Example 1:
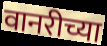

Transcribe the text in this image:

वानरीच्या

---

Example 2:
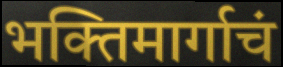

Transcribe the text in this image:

भक्तिमार्गाचं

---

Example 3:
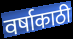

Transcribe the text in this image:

वर्षाकाठी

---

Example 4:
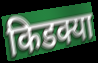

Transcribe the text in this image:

किडक्या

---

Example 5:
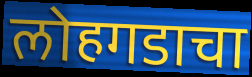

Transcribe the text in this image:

लोहगडाचा